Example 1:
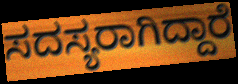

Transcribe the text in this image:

ಸದಸ್ಯರಾಗಿದ್ದಾರೆ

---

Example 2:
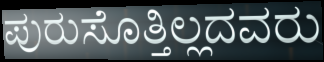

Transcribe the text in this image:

ಪುರುಸೊತ್ತಿಲ್ಲದವರು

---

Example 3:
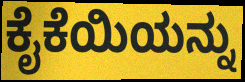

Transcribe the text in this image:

ಕೈಕೆಯಿಯನ್ನು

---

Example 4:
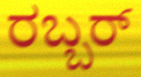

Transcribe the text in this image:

ರಬ್ಬರ್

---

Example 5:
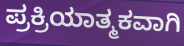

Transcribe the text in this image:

ಪ್ರಕ್ರಿಯಾತ್ಮಕವಾಗಿ